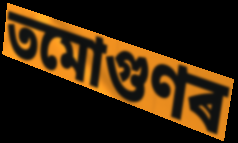
তমোগুণৰ